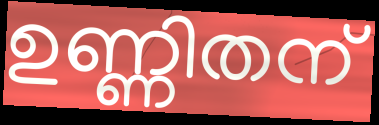
ഉണ്ണിതന്